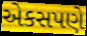
એકસપણે